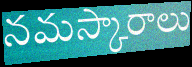
నమస్కారాలు